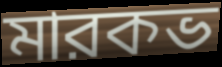
মারকভ